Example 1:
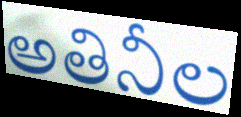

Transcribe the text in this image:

అతినీల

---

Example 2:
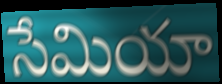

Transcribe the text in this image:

సేమియా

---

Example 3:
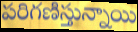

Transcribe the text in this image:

పరిగణిస్తున్నాయి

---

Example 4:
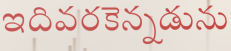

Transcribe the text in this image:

ఇదివరకెన్నడును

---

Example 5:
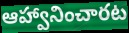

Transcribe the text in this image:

ఆహ్వానించారట